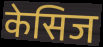
केसिज